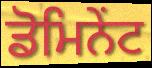
ਡੋਮਿਨੇਂਟ